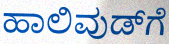
ಹಾಲಿವುಡ್‌ಗೆ